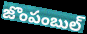
జొంపంబుల్